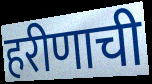
हरीणाची